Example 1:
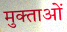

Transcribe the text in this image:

मुक्ताओं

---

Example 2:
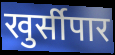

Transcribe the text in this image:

खुर्सीपार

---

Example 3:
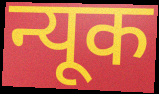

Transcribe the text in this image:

न्यूक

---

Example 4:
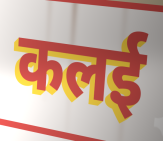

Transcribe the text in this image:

कलई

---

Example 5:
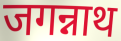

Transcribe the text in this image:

जगन्नाथ